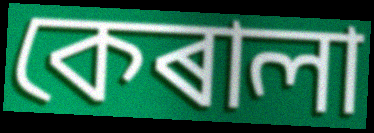
কেৰালা